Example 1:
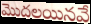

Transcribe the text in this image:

మొదలయినవే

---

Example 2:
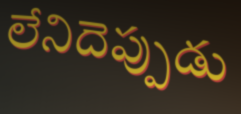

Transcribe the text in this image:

లేనిదెప్పుడు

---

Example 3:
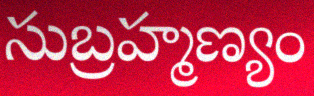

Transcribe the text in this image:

సుబ్రహ్మణ్యం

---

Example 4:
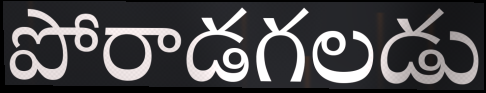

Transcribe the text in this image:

పోరాడగలడు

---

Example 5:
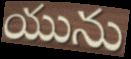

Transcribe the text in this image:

యును